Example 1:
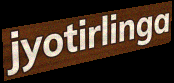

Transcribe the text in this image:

jyotirlinga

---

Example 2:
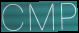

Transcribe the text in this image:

CMP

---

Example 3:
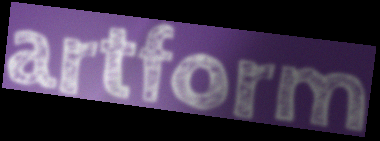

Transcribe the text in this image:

artform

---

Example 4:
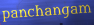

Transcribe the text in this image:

panchangam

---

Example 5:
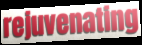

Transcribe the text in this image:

rejuvenating